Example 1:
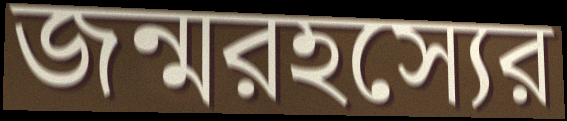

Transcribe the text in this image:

জন্মরহস্যের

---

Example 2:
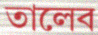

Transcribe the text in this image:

তালেব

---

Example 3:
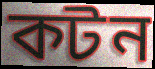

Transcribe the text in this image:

কটন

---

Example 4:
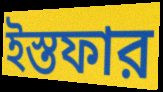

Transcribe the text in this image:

ইস্তফার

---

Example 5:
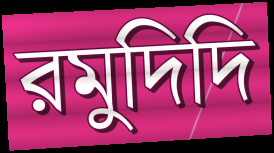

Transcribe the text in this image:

রমুদিদি